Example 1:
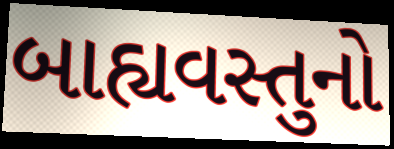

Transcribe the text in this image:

બાહ્યવસ્તુનો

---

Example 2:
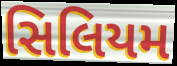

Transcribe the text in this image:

સિલિયમ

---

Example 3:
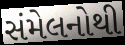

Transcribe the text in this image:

સંમેલનોથી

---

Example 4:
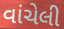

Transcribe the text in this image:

વાંચેલી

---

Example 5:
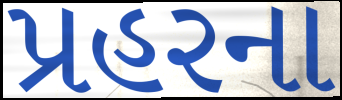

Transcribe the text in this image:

પ્રહરના